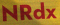
NRdx